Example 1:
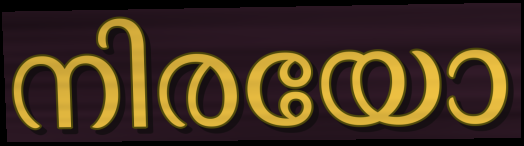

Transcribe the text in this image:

നിരയോ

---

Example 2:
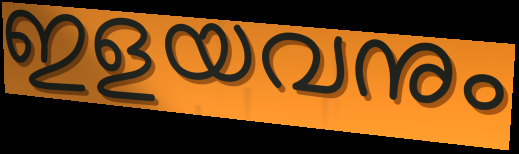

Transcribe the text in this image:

ഇളയവനും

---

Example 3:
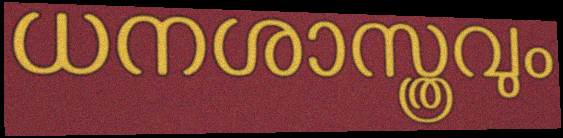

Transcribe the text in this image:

ധനശാസ്ത്രവും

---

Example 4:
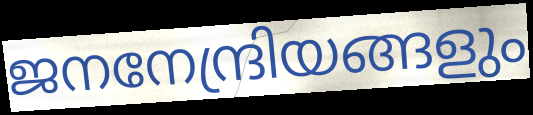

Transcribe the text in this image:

ജനനേന്ദ്രിയങ്ങളും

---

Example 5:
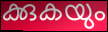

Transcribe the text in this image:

ക്കുകയും